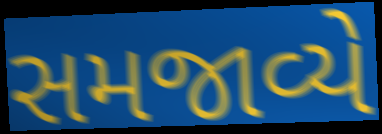
સમજાવ્યે